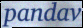
pandav